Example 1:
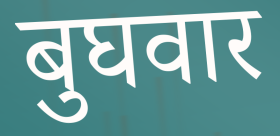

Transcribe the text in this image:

बुघवार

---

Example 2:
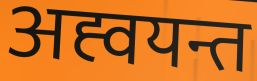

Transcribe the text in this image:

अह्वयन्त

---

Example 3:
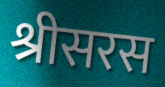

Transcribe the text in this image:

श्रीसरस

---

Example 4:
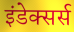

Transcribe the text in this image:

इंडेक्सर्स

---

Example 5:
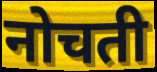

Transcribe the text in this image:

नोचती